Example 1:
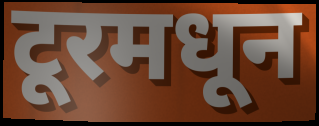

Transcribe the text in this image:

टूरमधून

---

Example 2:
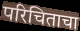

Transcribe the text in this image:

परिचिताचा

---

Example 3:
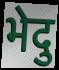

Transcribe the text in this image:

भेदु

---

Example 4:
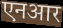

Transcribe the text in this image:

एनआर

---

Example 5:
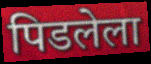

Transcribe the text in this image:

पिडलेला